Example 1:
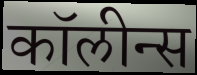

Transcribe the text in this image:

कॉलीन्स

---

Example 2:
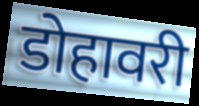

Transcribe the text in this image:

डोहावरी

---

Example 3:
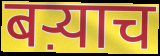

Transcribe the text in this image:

बऱ्‍याच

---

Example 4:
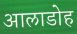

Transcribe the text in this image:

आलाडोह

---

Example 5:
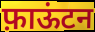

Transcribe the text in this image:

फ़ाऊंटन